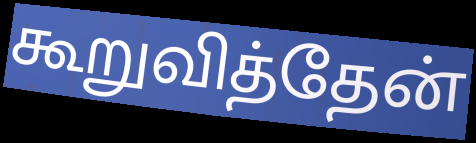
கூறுவித்தேன்